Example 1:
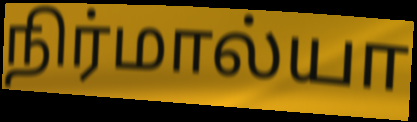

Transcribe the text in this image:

நிர்மால்யா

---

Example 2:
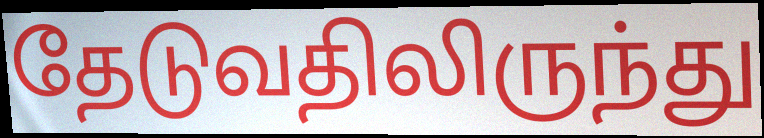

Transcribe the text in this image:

தேடுவதிலிருந்து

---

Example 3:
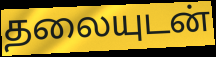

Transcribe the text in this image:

தலையுடன்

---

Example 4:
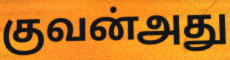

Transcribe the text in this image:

குவன்அது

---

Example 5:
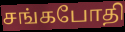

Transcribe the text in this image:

சங்கபோதி